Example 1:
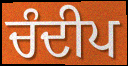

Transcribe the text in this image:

ਚੰਦੀਪ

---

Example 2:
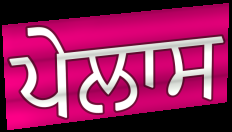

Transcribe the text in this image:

ਪੇਲਾਸ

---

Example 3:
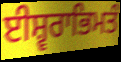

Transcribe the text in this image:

ਈਸ਼੍ਵਰਾਭਿਮਤੰ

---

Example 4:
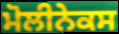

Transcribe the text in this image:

ਮੋਲੀਨੇਕਸ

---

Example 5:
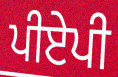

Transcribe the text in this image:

ਪੀਏਪੀ